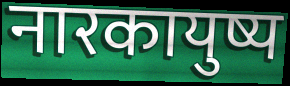
नारकायुष्य